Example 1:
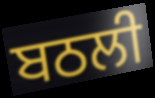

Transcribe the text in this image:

ਬਠਲੀ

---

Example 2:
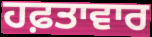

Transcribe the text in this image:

ਹਫ਼ਤਾਵਾਰ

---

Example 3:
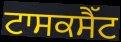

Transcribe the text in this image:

ਟਾਸਕਸੈੱਟ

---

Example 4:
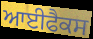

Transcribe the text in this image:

ਆਈਫੈਕਸ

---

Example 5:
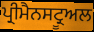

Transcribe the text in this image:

ਪ੍ਰੀਮੈਨਸਟ੍ਰੂਅਲ